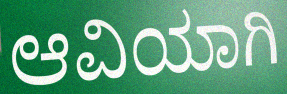
ಆವಿಯಾಗಿ